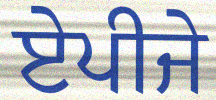
ਏਪੀਜੇ